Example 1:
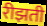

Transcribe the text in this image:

रीझती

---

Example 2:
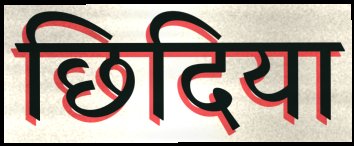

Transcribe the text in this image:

छिदिया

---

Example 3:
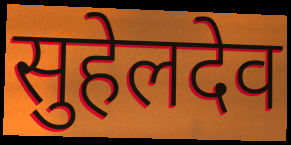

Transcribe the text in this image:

सुहेलदेव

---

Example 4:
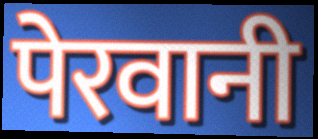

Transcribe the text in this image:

पेरवानी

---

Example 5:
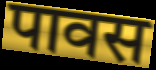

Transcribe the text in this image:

पावस